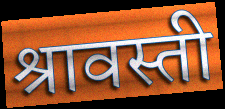
श्रावस्ती